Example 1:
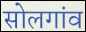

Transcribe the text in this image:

सोलगांव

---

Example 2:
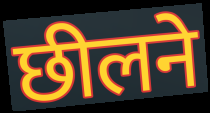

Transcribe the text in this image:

छीलने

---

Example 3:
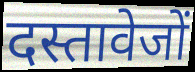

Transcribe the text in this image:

दस्तावेजों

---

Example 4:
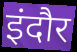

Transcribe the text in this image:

इंदौर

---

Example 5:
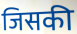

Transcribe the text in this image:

जिसकी